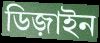
ডিজ়াইন